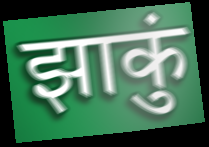
झाकुं